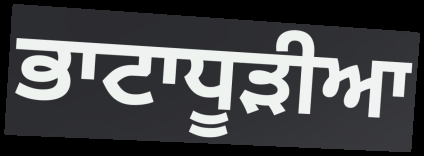
ਭਾਟਾਧੂੜੀਆ